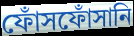
ফোঁসফোঁসানি